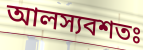
আলস্যবশতঃ